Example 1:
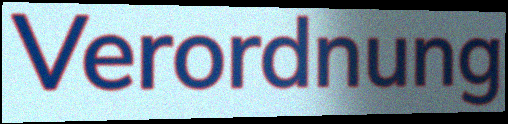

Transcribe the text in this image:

Verordnung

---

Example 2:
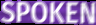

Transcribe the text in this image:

SPOKEN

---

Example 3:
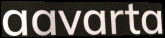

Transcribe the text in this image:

aavarta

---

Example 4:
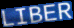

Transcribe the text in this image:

LIBER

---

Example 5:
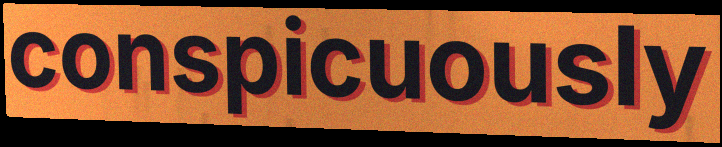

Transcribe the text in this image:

conspicuously